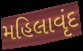
મહિલાવૃંદ